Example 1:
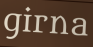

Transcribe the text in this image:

girna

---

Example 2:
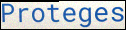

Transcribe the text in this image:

Proteges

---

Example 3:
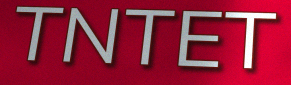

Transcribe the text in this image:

TNTET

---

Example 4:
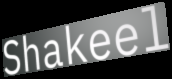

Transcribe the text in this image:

Shakeel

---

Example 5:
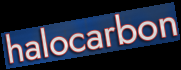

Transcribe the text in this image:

halocarbon